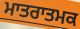
ਮਾਤਰਾਤਮਕ